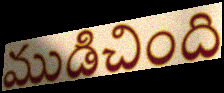
ముడిచింది